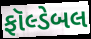
ફૉલ્ડેબલ